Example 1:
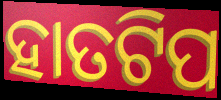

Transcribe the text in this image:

ହାତଟିପ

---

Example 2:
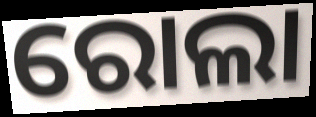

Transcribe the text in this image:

ରୋଲା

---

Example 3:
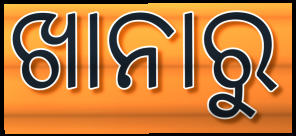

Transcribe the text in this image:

ଖାନାରୁ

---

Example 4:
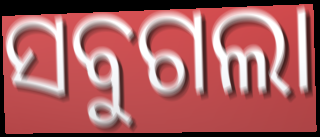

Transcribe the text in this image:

ସବୁଗଲା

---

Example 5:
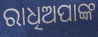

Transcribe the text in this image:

ରାଧିଅପାଙ୍କ